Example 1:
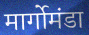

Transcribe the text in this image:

मार्गोमंडा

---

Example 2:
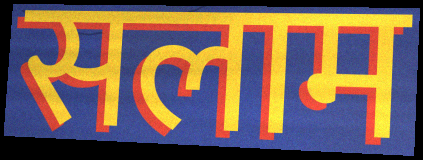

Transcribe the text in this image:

सलाम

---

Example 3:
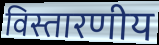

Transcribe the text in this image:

विस्तारणीय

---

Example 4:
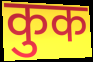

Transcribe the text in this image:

कुक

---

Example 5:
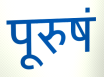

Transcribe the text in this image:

पूरुषं